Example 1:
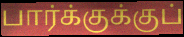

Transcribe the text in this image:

பார்க்குக்குப்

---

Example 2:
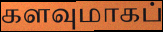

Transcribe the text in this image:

களவுமாகப்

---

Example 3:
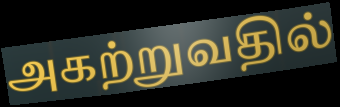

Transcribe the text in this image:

அகற்றுவதில்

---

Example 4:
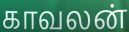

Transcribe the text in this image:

காவலன்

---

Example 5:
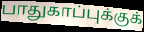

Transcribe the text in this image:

பாதுகாப்புக்குக்